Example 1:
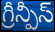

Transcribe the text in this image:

గ్రీన్పీస్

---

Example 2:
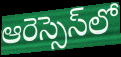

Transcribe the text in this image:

ఆరెస్సెస్‌లో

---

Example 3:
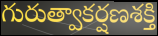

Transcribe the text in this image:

గురుత్వాకర్షణశక్తి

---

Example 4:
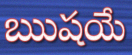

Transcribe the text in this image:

ఋషయే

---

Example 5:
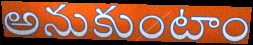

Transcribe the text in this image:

అనుకుంటాం